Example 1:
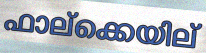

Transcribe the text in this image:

ഫാല്ക്കെയില്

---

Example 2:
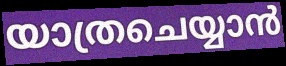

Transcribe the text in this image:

യാത്രചെയ്യാൻ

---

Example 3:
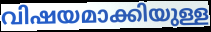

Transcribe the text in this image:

വിഷയമാക്കിയുള്ള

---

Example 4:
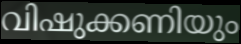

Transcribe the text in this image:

വിഷുക്കണിയും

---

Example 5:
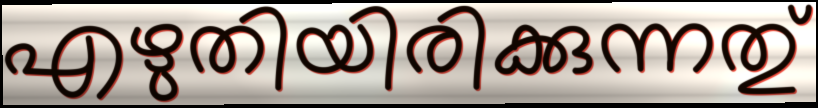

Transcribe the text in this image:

എഴുതിയിരിക്കുന്നതു്